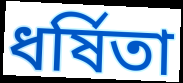
ধৰ্ষিতা